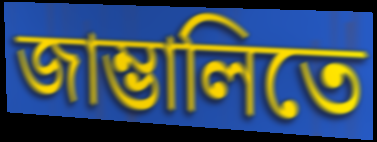
জাম্ভালিতে